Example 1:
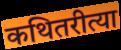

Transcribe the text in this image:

कथितरीत्या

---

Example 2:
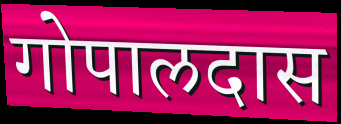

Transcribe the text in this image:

गोपालदास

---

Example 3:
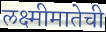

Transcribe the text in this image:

लक्ष्मीमातेची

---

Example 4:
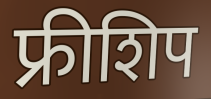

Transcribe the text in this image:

फ्रीशिप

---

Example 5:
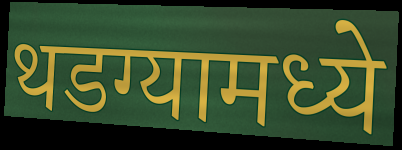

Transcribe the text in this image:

थडग्यामध्ये